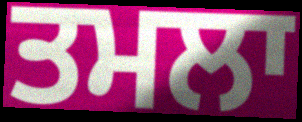
ਤਮਲਾ